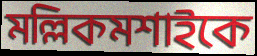
মল্লিকমশাইকে